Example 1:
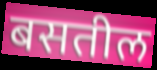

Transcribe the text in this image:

बसतील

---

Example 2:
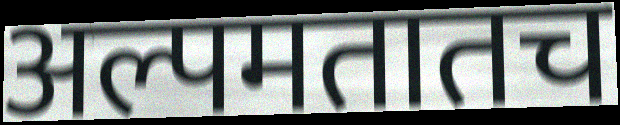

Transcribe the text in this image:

अल्पमतातच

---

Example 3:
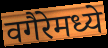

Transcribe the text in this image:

वगैरेमध्ये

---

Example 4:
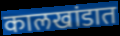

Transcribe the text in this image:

कालखांडात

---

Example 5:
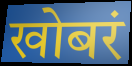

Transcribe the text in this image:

खोबरं